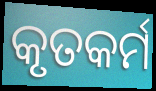
କୃତକର୍ମ